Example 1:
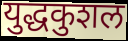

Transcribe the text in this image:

युद्धकुशल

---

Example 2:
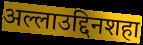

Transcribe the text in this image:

अल्लाउद्दिनशहा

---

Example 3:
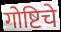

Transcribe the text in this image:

गोष्टिचे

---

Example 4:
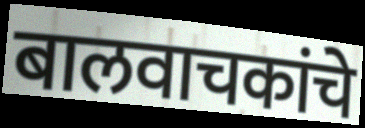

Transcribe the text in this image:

बालवाचकांचे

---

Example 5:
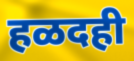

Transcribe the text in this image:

हळदही